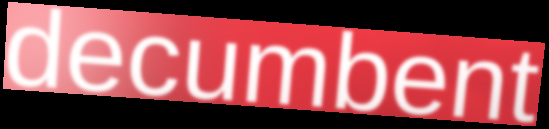
decumbent